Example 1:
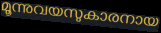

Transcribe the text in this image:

മൂന്നുവയസുകാരനായ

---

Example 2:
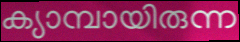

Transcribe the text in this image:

ക്യാമ്പായിരുന്ന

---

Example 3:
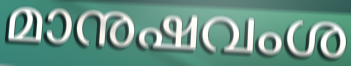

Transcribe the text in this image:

മാനുഷവംശ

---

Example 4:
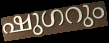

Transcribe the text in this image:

ഷുഗറും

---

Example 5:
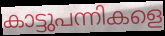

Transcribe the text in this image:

കാട്ടുപന്നികളെ